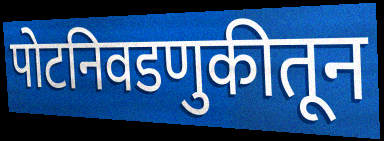
पोटनिवडणुकीतून